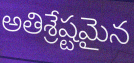
అతిశ్రేష్టమైన